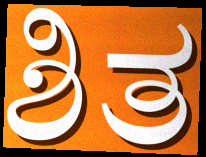
ಶಿತ